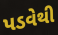
પડવેથી